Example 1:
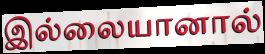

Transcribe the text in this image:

இல்லையானால்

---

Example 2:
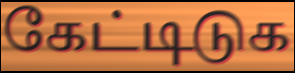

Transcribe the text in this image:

கேட்டிடுக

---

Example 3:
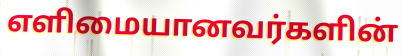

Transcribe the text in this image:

எளிமையானவர்களின்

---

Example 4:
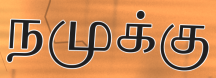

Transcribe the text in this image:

நமுக்கு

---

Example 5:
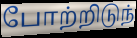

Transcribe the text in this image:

போற்றிடுந்